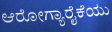
ಆರೋಗ್ಯಾರೈಕೆಯು